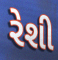
રેશી